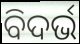
ବିଦର୍ଭ